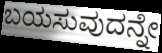
ಬಯಸುವುದನ್ನೇ